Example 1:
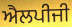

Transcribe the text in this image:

ਐਲਪੀਜੀ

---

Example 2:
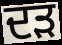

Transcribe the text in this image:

ਦੜ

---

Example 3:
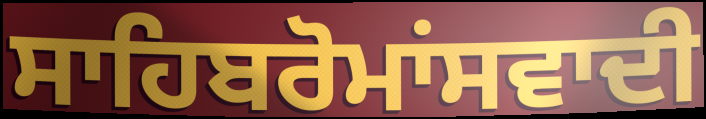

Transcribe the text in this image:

ਸਾਹਿਬਰੋਮਾਂਸਵਾਦੀ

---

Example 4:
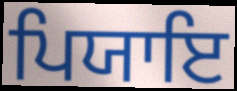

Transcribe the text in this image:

ਪਿਯਾਇ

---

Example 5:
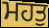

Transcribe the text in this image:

ਮਹਤੁ